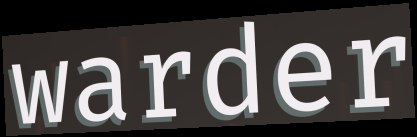
warder